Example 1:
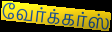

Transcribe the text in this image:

வேர்க்கர்ஸ்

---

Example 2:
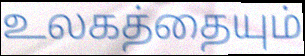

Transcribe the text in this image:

உலகத்தையும்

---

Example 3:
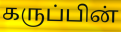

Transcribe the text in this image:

கருப்பின்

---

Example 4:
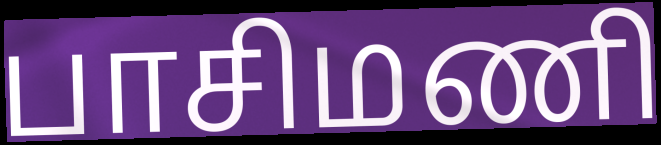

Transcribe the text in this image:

பாசிமணி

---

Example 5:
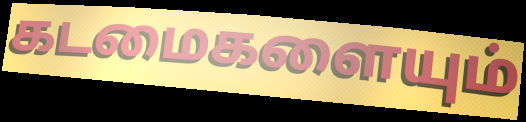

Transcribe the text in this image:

கடமைகளையும்